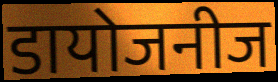
डायोजनीज